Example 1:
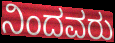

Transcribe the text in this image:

ನಿಂದವರು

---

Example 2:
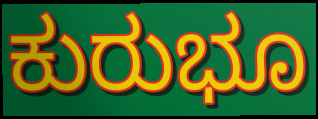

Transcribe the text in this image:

ಕುರುಭೂ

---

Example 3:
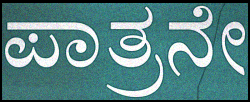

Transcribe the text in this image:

ಪಾತ್ರನೇ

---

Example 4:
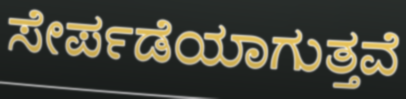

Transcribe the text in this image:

ಸೇರ್ಪಡೆಯಾಗುತ್ತವೆ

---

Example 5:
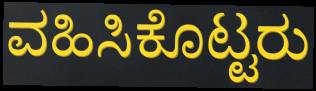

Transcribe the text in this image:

ವಹಿಸಿಕೊಟ್ಟರು